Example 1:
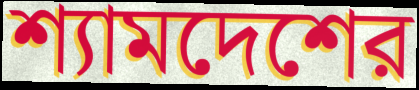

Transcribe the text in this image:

শ্যামদেশের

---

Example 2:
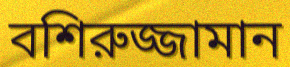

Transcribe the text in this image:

বশিরুজ্জামান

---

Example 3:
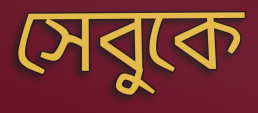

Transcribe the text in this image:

সেবুকে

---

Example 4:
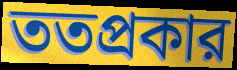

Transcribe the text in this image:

ততপ্রকার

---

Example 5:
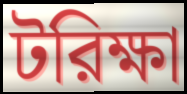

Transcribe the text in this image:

টরিক্ষা